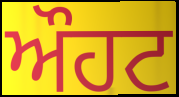
ਔਹਟ